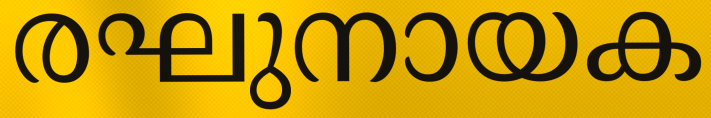
രഘുനായക